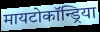
मायटोकॉन्ड्रिया